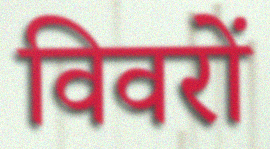
विवरों